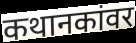
कथानकांवर